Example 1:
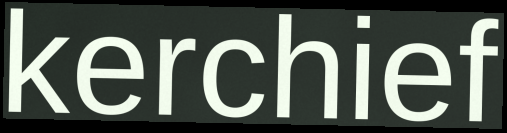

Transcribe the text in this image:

kerchief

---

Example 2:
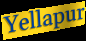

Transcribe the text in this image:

Yellapur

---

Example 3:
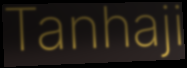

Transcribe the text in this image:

Tanhaji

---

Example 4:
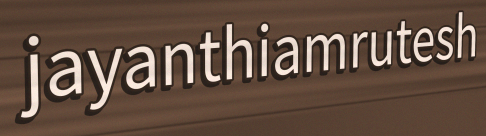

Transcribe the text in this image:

jayanthiamrutesh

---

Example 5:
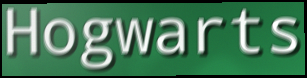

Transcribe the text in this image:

Hogwarts